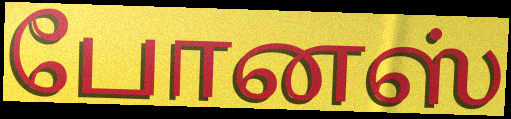
போனஸ்